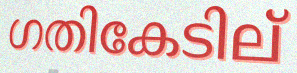
ഗതികേടില്